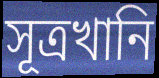
সূত্রখানি